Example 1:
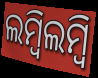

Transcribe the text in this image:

ଲମ୍ବିଲମ୍ବି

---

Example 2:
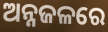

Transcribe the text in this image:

ଅନ୍ନଜଳରେ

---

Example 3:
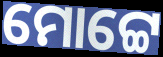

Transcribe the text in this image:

ମୋଟ୍ଟେ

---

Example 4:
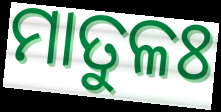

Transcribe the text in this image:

ମାତୁଳଃ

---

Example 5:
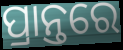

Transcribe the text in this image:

ପ୍ରାନ୍ତରେ